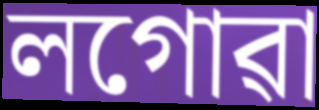
লগোৱা